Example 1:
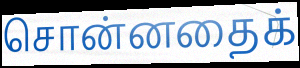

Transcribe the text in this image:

சொன்னதைக்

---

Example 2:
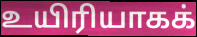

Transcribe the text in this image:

உயிரியாகக்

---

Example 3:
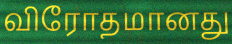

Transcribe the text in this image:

விரோதமானது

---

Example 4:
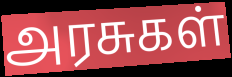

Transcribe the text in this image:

அரசுகள்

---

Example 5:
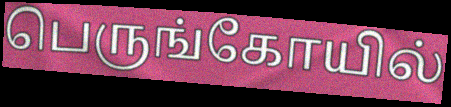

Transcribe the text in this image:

பெருங்கோயில்